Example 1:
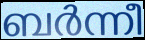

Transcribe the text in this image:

ബർന്നീ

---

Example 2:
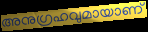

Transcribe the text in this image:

അനുഗ്രഹവുമായാണ്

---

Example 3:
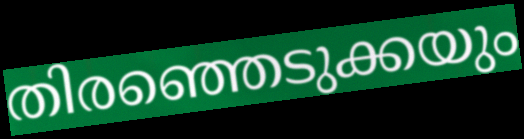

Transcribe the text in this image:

തിരഞ്ഞെടുക്കയും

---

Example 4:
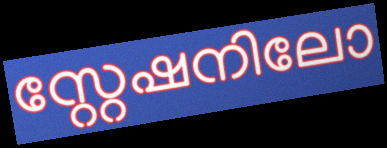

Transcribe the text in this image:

സ്റ്റേഷനിലോ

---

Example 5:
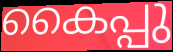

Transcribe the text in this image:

കൈപ്പു